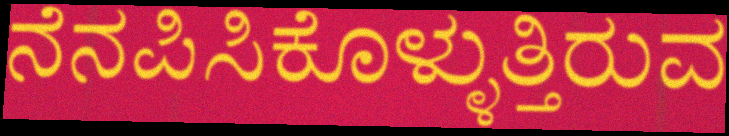
ನೆನಪಿಸಿಕೊಳ್ಳುತ್ತಿರುವ